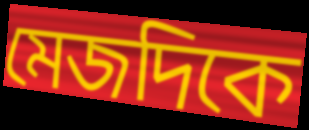
মেজদিকে